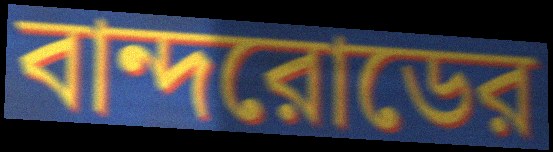
বান্দরোডের